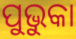
ପୁଭୁକା